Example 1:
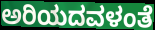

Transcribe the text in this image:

ಅರಿಯದವಳಂತೆ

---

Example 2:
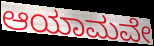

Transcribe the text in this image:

ಆಯಾಮವೇ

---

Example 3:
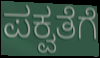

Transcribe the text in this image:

ಪಕ್ವತೆಗೆ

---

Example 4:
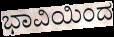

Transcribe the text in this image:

ಭಾವಿಯಿಂದ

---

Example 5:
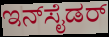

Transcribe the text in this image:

ಇನ್‌ಸೈಡರ್